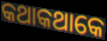
କଥାକଥାକେ